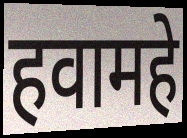
हवामहे